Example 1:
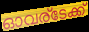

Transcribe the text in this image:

ഓവര്ടേക്ക്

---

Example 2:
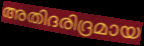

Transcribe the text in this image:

അതിദരിദ്രമായ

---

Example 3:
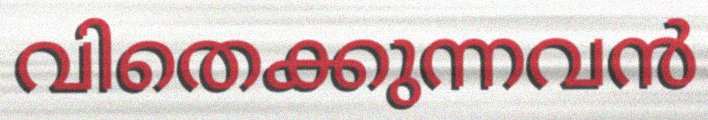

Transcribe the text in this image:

വിതെക്കുന്നവൻ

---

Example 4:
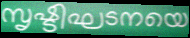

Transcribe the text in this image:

സൃഷ്ടിഘടനയെ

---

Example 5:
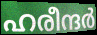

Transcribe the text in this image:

ഹരീന്ദർ